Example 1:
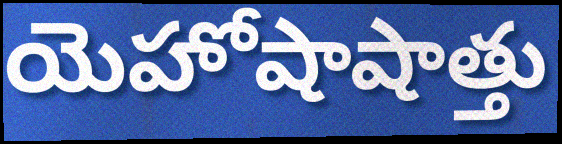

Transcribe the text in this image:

యెహోషాషాత్తు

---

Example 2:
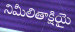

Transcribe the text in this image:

నిమీలితాక్షియై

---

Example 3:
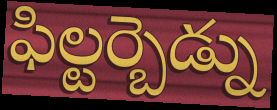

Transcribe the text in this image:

ఫిల్టర్బెడ్ను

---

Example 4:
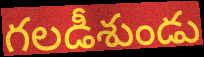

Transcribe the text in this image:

గలడీశుండు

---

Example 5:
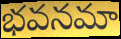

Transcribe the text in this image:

భవనమా